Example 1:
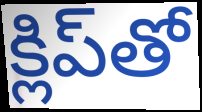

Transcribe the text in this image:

క్లిప్‌తో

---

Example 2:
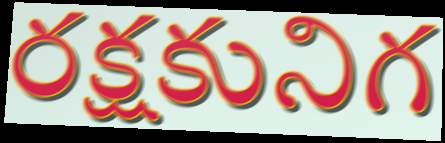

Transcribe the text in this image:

రక్షకునిగ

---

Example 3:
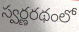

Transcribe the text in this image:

స్వర్ణరథంలో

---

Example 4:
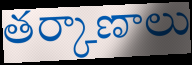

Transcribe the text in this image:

తర్కాణాలు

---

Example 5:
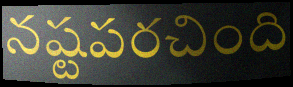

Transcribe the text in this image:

నష్టపరచింది